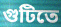
গুটিতে